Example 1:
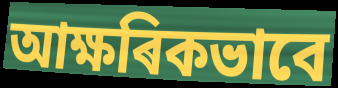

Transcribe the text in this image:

আক্ষৰিকভাবে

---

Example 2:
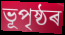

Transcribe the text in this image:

ভূপৃষ্ঠৰ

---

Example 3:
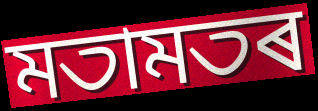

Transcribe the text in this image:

মতামতৰ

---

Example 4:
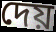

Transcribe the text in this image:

দেয়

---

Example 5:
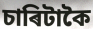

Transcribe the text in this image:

চাৰিটাকৈ